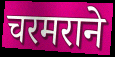
चरमराने